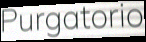
Purgatorio